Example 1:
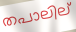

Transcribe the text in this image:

തപാലില്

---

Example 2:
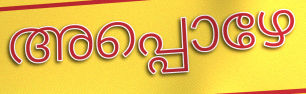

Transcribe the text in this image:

അപ്പൊഴേ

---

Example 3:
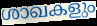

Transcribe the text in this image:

ശാഖകളും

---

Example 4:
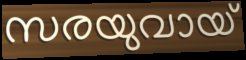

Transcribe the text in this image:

സരയുവായ്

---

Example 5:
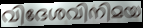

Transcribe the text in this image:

വിദേശവിനിമയ